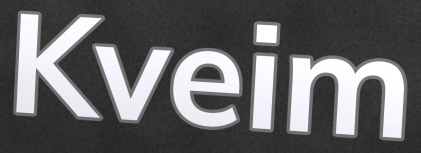
Kveim